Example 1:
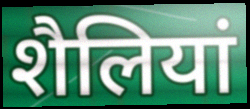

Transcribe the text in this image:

शैलियां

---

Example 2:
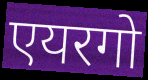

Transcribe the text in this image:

एयरगो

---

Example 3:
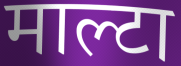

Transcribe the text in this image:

माल्टा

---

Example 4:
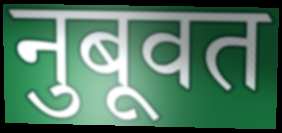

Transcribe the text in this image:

नुबूवत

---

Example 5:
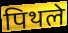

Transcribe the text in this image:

पिथले